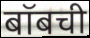
बॉबची